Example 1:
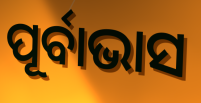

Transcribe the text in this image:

ପୂର୍ବାଭାସ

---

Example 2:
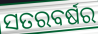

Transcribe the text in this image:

ସତରବର୍ଷର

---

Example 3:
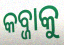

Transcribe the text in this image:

କବ୍ଜାକୁ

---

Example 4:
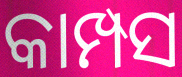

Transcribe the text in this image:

କାମ୍ପସ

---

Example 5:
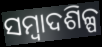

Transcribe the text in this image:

ସମ୍ୱାଦଶିଳ୍ପ